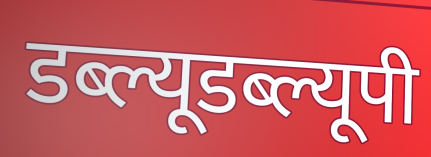
डब्ल्यूडब्ल्यूपी